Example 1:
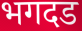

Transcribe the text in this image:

भगदड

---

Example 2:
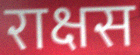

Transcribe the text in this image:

राक्षस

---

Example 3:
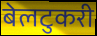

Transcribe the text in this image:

बेलटुकरी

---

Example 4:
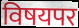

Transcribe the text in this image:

विषयपर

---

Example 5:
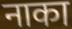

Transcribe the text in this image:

नाका